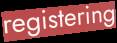
registering